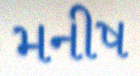
મનીષ